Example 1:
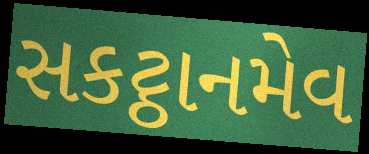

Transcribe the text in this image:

સકટ્ઠાનમેવ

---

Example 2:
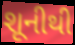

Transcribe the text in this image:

શૂનીથી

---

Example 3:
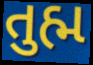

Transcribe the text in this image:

તુહ્મ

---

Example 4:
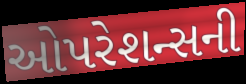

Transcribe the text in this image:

ઓપરેશન્સની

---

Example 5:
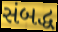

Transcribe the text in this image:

સંબદ્ધ